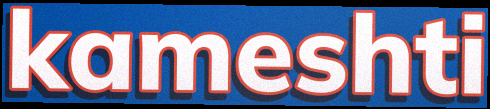
kameshti